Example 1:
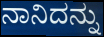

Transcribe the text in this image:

ನಾನಿದನ್ನು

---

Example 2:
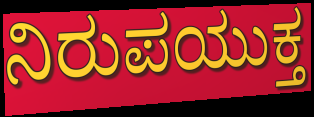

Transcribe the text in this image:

ನಿರುಪಯುಕ್ತ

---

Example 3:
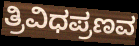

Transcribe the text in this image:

ತ್ರಿವಿಧಪ್ರಣವ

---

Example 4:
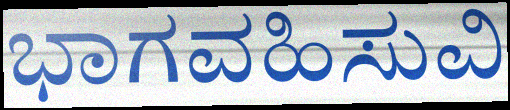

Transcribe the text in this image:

ಭಾಗವಹಿಸುವಿ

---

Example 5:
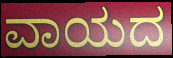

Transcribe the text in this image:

ವಾಯದ